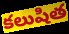
కలుషిత